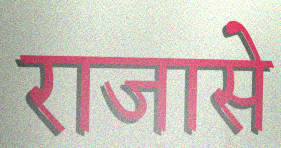
राजासे